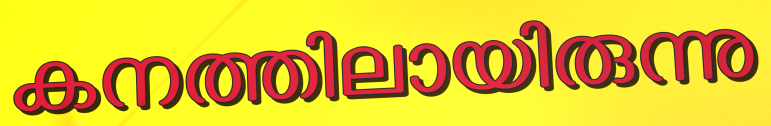
കനത്തിലായിരുന്നു